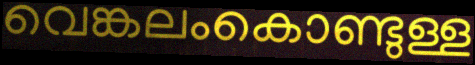
വെങ്കലംകൊണ്ടുള്ള